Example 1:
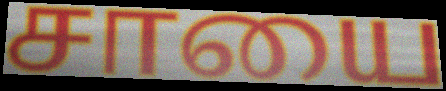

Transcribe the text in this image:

சாயை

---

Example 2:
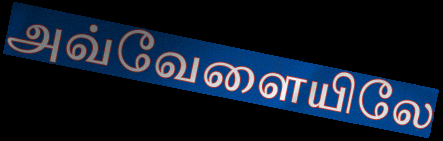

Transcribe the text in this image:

அவ்வேளையிலே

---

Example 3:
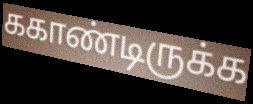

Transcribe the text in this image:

ககாண்டிருக்க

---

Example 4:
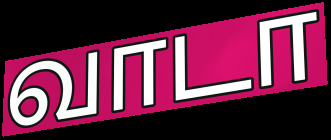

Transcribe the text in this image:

வாடா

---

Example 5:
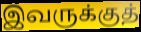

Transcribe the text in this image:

இவருக்குத்